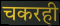
चकरही